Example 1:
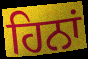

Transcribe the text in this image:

ਹਿਨਾਂ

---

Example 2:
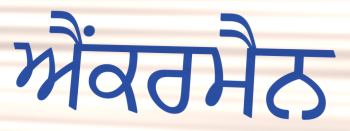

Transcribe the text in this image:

ਐਂਕਰਮੈਨ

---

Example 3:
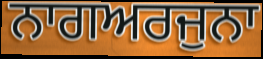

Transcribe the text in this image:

ਨਾਗਅਰਜੁਨਾ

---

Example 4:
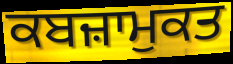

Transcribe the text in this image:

ਕਬਜ਼ਾਮੁਕਤ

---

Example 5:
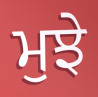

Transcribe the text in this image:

ਮੁਝੇ